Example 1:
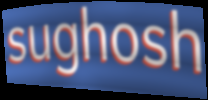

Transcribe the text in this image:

sughosh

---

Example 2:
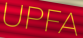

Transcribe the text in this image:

UPFA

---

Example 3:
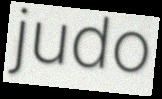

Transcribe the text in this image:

judo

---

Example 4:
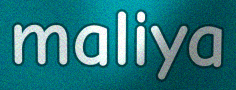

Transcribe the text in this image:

maliya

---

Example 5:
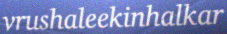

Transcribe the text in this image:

vrushaleekinhalkar